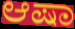
ಆಷಾ